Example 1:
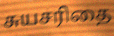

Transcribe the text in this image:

சுயசரிதை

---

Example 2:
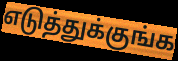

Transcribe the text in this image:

எடுத்துக்குங்க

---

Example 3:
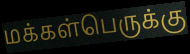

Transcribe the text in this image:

மக்கள்பெருக்கு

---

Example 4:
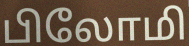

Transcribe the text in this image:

பிலோமி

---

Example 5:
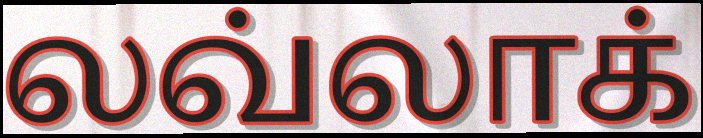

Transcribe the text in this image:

லவ்லாக்